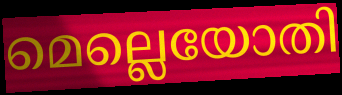
മെല്ലെയോതി